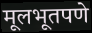
मूलभूतपणे